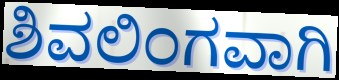
ಶಿವಲಿಂಗವಾಗಿ